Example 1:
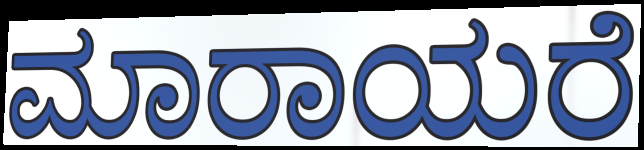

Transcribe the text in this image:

ಮಾರಾಯರೆ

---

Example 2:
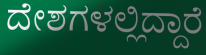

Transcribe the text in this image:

ದೇಶಗಳಲ್ಲಿದ್ದಾರೆ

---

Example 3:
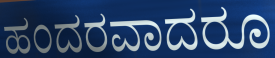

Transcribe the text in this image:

ಹಂದರವಾದರೂ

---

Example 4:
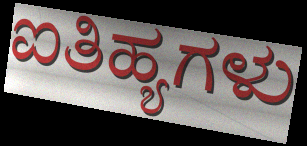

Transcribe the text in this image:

ಐತಿಹ್ಯಗಳು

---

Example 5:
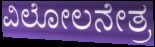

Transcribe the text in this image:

ವಿಲೋಲನೇತ್ರ